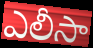
ఎలీసా